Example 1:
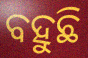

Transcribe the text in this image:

ବହୁଛି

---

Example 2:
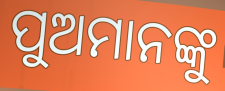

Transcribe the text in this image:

ପୁଅମାନଙ୍କୁ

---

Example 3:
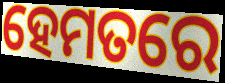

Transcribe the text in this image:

ହେମତରେ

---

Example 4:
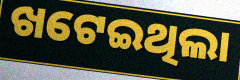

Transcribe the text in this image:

ଖଟେଇଥିଲା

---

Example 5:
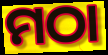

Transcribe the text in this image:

ମଠା